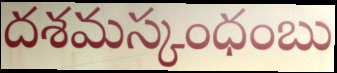
దశమస్కంధంబు